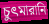
চুৎমারানি